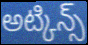
అట్కిన్స్